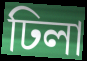
ঢিলা